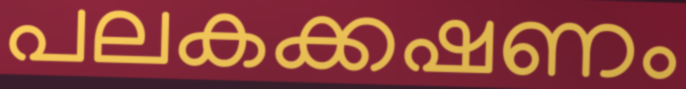
പലകക്കഷണം